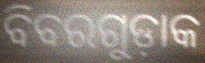
ବିବରଗୁଡ଼ାକ